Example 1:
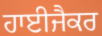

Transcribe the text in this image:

ਹਾਈਜੈਕਰ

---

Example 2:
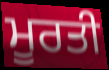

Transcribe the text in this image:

ਮੂਰਤੀ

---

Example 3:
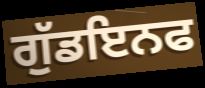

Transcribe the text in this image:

ਗੁੱਡਇਨਫ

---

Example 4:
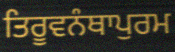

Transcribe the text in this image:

ਤਿਰੂਵਨੰਥਾਪੁਰਮ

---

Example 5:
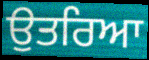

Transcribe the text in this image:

ਉਤਰਿਆ